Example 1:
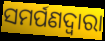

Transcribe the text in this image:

ସମର୍ପଣଦ୍ୱାରା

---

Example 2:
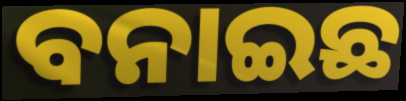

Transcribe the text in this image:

ବନାଇଛ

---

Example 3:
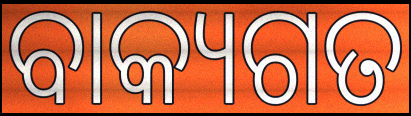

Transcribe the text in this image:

ବାକ୍ୟଗତ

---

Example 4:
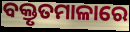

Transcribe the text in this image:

ବକ୍ତୃତମାଳାରେ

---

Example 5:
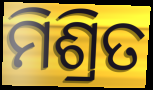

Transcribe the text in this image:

ମିଶ୍ରିତ